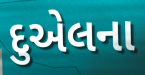
દુએલના